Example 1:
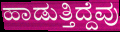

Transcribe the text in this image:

ಹಾಡುತ್ತಿದ್ದೆವು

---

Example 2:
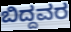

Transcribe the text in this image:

ಬಿದ್ದವರ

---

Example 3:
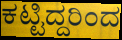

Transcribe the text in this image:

ಕಟ್ಟಿದ್ದರಿಂದ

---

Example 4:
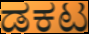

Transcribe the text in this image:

ಡಕಟ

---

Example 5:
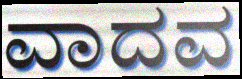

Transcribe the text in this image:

ವಾದವ